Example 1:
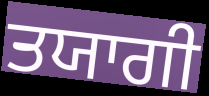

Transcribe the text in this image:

ਤਯਾਗੀ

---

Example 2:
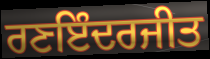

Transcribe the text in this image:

ਰਣਇੰਦਰਜੀਤ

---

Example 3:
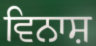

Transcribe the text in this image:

ਵਿਨਾਸ਼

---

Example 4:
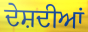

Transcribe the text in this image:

ਦੇਸ਼ਦੀਆਂ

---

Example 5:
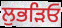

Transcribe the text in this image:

ਲੁਭੜਿਓ